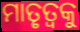
ମାତୃତ୍ବକୁ